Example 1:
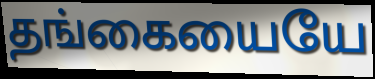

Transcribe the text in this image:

தங்கையையே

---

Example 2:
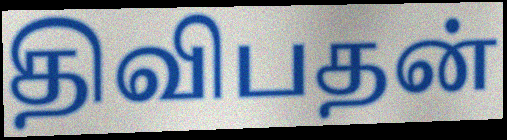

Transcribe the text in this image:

திவிபதன்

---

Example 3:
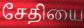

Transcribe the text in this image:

சேதியை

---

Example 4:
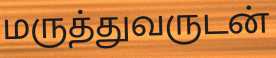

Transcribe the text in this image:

மருத்துவருடன்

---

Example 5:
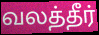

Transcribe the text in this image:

வலத்தீர்